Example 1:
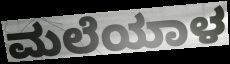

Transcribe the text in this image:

ಮಲೆಯಾಳ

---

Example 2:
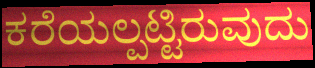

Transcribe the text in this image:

ಕರೆಯಲ್ಪಟ್ಟಿರುವುದು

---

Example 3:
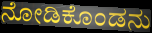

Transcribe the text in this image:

ನೋಡಿಕೊಂಡನು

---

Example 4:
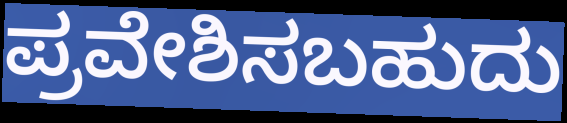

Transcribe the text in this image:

ಪ್ರವೇಶಿಸಬಹುದು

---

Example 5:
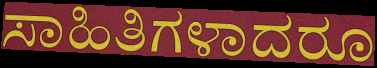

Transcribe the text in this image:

ಸಾಹಿತಿಗಳಾದರೂ